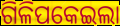
ଗିଳିପକେଇଲା